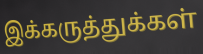
இக்கருத்துக்கள்